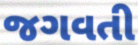
જગવતી